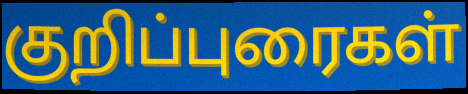
குறிப்புரைகள்